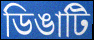
ডিঙাটি